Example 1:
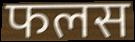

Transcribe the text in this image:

फलस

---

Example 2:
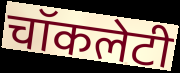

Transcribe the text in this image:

चॉकलेटी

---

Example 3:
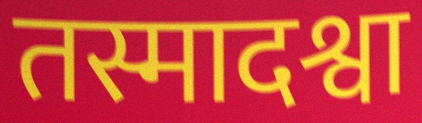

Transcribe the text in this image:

तस्मादश्वा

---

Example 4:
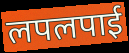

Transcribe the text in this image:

लपलपाई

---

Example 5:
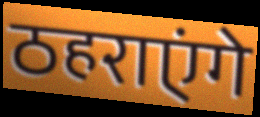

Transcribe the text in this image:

ठहराएंगे